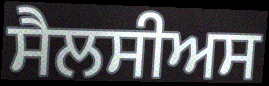
ਸੈਲਸੀਅਸ